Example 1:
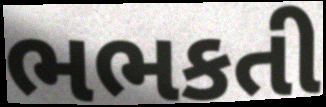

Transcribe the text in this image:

ભભકતી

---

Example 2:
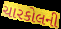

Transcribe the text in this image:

ચારકોલની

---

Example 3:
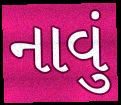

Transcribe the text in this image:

નાવું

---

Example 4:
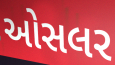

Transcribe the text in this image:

ઓસલર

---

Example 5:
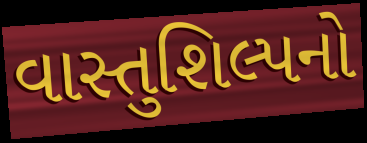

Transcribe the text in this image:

વાસ્તુશિલ્પનો